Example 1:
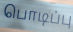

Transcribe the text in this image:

பொடிப்பு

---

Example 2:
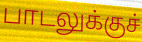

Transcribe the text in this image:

பாடலுக்குச்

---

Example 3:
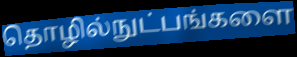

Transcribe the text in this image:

தொழில்நுட்பங்களை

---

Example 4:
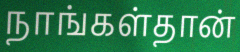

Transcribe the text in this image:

நாங்கள்தான்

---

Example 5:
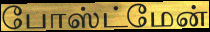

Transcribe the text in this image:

போஸ்ட்மேன்